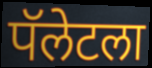
पॅलेटला